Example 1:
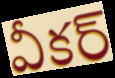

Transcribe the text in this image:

వీకర్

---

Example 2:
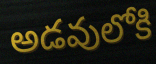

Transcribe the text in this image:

అడవులోకి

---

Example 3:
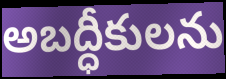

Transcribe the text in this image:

అబద్ధీకులను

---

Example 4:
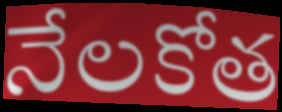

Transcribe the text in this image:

నేలకోత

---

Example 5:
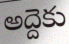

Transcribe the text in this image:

అద్దెకు